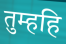
तुम्हहि